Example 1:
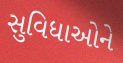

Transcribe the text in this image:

સુવિધાઓને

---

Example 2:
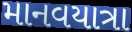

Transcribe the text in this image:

માનવયાત્રા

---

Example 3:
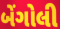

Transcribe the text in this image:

બેંગોલી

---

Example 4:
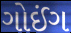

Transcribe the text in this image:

ગોઈંગ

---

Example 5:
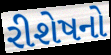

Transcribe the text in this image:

રીશેષનો